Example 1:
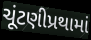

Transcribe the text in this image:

ચૂંટણીપ્રથામાં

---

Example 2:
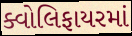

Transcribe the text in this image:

ક્વોલિફાયરમાં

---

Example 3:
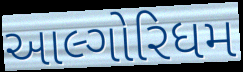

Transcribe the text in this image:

આલ્ગોરિધમ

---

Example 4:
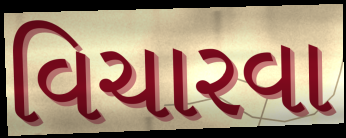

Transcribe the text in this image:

વિચારવા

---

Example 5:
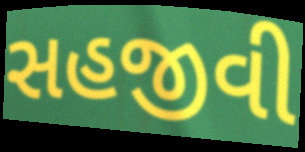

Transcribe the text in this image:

સહજીવી